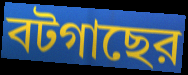
বটগাছের